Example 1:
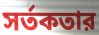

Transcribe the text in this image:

সর্তকতার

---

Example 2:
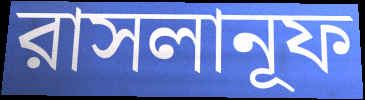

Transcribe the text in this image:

রাসলানূফ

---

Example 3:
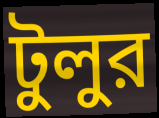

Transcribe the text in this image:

টুলুর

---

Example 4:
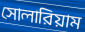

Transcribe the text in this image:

সোলারিয়াম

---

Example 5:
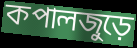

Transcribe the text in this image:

কপালজুড়ে